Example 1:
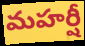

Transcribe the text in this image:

మహర్షీ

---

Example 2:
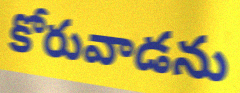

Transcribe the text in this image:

కోరువాడను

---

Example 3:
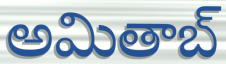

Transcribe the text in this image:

అమితాబ్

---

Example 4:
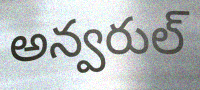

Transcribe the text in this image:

అన్వరుల్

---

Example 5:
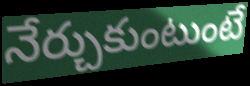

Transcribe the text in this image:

నేర్చుకుంటుంటే